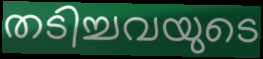
തടിച്ചവയുടെ